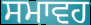
ਸਮਾਵਹ